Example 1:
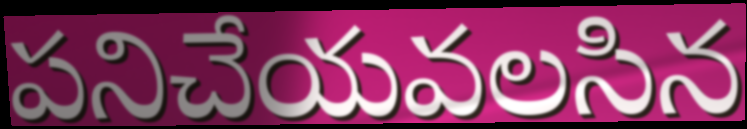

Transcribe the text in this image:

పనిచేయవలసిన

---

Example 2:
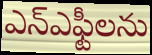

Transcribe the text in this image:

ఎన్ఎఫ్టీలను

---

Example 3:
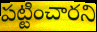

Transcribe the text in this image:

పట్టించారని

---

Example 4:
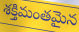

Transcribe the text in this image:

శక్తిమంతమైన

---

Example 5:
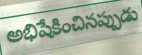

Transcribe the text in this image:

అభిషేకించినప్పుడు